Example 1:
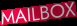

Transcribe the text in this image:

MAILBOX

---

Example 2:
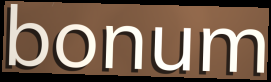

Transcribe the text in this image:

bonum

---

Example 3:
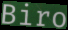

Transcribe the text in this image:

Biro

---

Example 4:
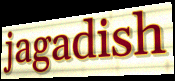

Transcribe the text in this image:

jagadish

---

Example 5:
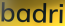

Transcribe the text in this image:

badri